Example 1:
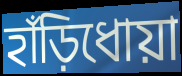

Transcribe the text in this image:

হাঁড়িধোয়া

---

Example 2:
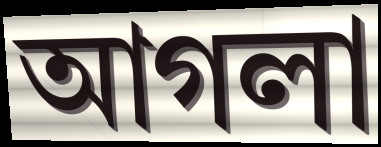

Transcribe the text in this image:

আগলা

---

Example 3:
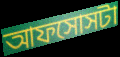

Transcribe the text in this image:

আফসোসটা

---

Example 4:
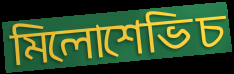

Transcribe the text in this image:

মিলোশেভিচ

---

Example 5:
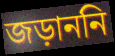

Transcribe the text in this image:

জড়াননি